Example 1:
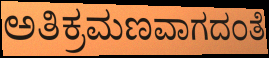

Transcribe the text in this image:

ಅತಿಕ್ರಮಣವಾಗದಂತೆ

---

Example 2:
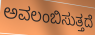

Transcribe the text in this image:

ಅವಲಂಬಿಸುತ್ತದೆ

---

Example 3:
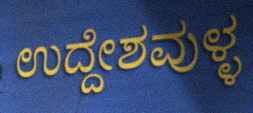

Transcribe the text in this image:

ಉದ್ದೇಶವುಳ್ಳ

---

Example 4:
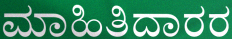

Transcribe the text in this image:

ಮಾಹಿತಿದಾರರ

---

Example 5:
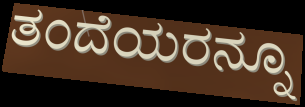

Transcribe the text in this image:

ತಂದೆಯರನ್ನೂ